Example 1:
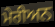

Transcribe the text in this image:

ਮੇਰੀਅਨ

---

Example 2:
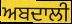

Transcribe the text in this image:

ਅਬਦਾਲੀ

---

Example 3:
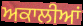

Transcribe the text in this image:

ਅਕਾਲੀਆਂ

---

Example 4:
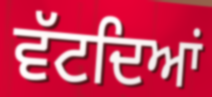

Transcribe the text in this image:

ਵੱਟਦਿਆਂ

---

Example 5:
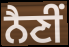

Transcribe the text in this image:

ਨੈਣੀਂ